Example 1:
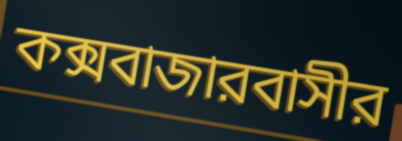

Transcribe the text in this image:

কক্সবাজারবাসীর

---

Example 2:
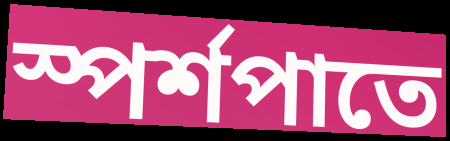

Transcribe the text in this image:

স্পর্শপাতে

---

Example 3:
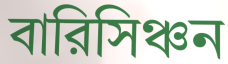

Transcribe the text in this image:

বারিসিঞ্চন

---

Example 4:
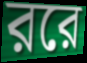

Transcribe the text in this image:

ররে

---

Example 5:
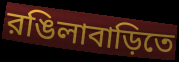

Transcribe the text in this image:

রঙিলাবাড়িতে